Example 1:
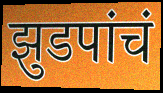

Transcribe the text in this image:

झुडपांचं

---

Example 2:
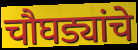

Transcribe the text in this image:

चौघड्यांचे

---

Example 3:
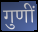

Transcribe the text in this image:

गुणीं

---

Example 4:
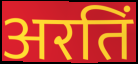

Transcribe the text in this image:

अरतिं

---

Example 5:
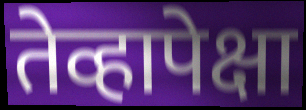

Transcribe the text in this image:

तेव्हापेक्षा